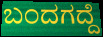
ಬಂದಗದ್ದೆ